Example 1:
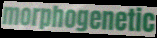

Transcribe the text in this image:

morphogenetic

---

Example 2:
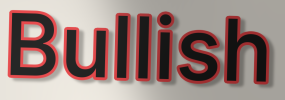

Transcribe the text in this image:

Bullish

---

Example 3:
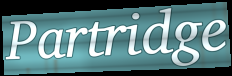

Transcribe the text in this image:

Partridge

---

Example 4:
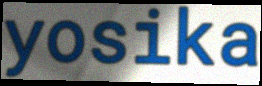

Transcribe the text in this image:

yosika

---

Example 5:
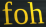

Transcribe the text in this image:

foh